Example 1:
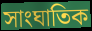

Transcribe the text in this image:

সাংঘাতিক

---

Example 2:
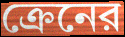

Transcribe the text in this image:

ক্রেনের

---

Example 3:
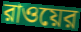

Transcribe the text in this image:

রাওয়ের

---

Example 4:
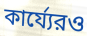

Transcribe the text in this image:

কার্য্যেরও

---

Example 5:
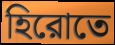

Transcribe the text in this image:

হিরোতে